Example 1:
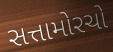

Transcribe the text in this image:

સત્તામોરચો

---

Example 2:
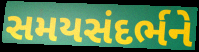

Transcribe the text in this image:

સમયસંદર્ભને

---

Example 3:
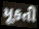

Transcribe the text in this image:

મૂકતી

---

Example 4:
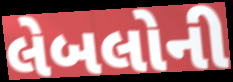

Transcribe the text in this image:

લેબલોની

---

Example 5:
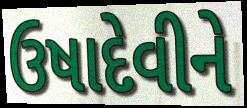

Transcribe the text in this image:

ઉષાદેવીને